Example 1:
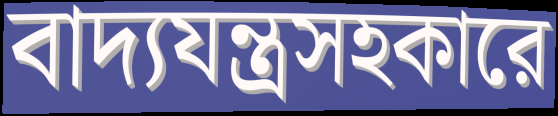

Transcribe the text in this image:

বাদ্যযন্ত্রসহকারে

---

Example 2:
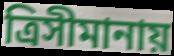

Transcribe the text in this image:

ত্রিসীমানায়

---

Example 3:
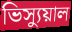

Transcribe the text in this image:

ভিস্যুয়াল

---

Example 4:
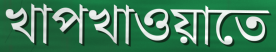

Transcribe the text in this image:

খাপখাওয়াতে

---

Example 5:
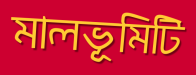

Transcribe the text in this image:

মালভূমিটি